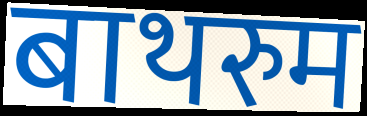
बाथरुम